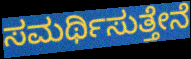
ಸಮರ್ಥಿಸುತ್ತೇನೆ